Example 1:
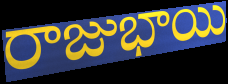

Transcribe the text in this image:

రాజుభాయి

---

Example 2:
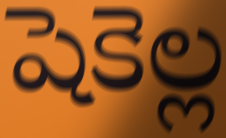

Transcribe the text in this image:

షెకెల్ల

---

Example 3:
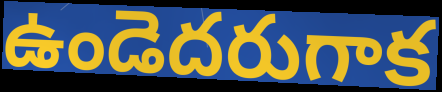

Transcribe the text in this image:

ఉండెదరుగాక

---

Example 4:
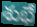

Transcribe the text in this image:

శుభే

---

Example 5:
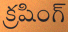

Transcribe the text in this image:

క్రషింగ్